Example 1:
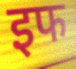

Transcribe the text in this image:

इफ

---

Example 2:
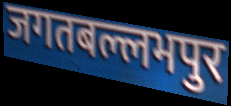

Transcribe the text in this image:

जगतबल्लभपुर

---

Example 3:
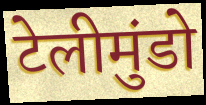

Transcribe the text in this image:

टेलीमुंडो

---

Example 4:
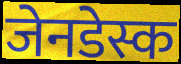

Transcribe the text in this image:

जेनडेस्क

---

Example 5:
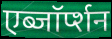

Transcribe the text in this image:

एब्जॉर्प्शन